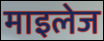
माइलेज